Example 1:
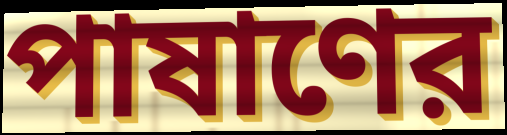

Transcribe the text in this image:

পাষাণের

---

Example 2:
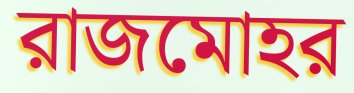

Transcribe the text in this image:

রাজমোহর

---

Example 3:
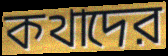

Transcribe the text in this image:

কথাদের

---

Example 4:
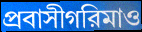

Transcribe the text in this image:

প্রবাসীগরিমাও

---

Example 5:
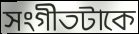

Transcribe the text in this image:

সংগীতটাকে